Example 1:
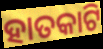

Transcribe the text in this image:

ହାତକାଟି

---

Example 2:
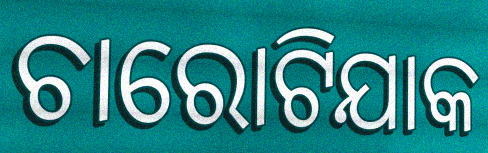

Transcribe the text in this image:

ଚାରୋଟିଯାକ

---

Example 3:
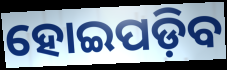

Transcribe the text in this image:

ହୋଇପଡ଼ିବ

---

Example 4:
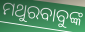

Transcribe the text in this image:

ମଥୁରବାବୁଙ୍କ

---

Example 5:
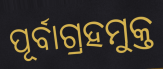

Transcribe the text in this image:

ପୂର୍ବାଗ୍ରହମୁକ୍ତ